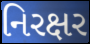
નિરક્ષર